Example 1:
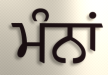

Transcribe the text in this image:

ਮੰਨਾਂ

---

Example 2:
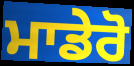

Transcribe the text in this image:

ਮਾਡੇਰੋ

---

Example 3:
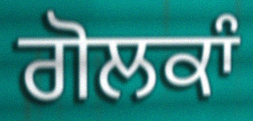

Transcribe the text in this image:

ਗੋਲਕਾੰ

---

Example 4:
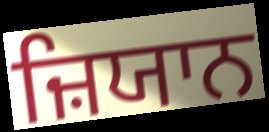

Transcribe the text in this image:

ਜ਼ਿਯਾਨ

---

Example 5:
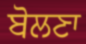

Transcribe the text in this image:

ਬੋਲਣਾ